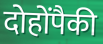
दोहोंपैकी